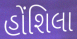
હોંશિલા